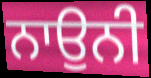
ਨਾਉਨੀ